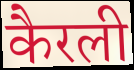
कैरली